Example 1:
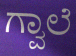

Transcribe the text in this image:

ಗ್ವಾಲೆ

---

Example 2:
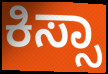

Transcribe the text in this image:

ಕಿಸ್ಸಾ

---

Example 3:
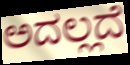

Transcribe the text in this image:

ಅದಲ್ಲದೆ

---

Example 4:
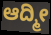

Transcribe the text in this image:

ಆದ್ಮೀ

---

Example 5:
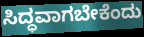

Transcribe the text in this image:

ಸಿದ್ಧವಾಗಬೇಕೆಂದು